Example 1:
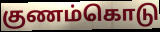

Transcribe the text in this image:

குணம்கொடு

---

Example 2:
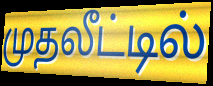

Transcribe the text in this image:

முதலீட்டில்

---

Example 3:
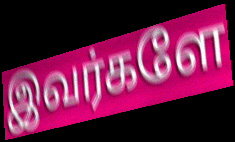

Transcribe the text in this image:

இவர்களே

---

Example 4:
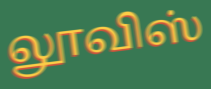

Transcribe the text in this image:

லூவிஸ்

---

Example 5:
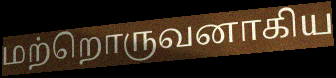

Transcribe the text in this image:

மற்றொருவனாகிய